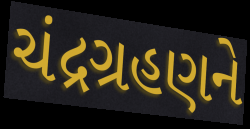
ચંદ્રગ્રહણને